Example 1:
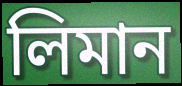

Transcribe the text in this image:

লিমান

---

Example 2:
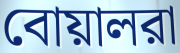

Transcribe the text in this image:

বোয়ালরা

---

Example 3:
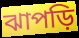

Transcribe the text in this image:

ঝাপড়ি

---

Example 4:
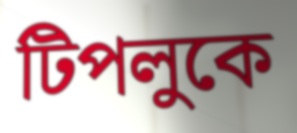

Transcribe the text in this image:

টিপলুকে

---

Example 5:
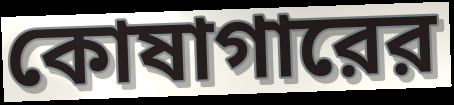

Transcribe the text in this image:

কোষাগারের